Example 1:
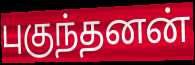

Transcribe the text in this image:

புகுந்தனன்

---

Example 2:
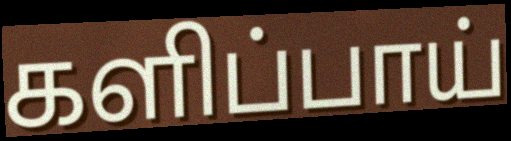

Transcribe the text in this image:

களிப்பாய்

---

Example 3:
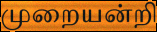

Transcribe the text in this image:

முறையன்றி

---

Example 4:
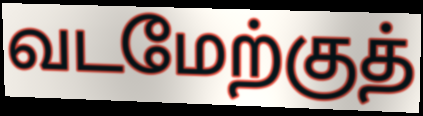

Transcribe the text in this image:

வடமேற்குத்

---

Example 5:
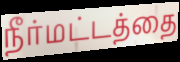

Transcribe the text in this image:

நீர்மட்டத்தை